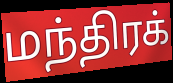
மந்திரக்